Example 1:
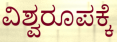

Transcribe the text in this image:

ವಿಶ್ವರೂಪಕ್ಕೆ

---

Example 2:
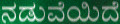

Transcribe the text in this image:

ನಡುವೆಯಿದೆ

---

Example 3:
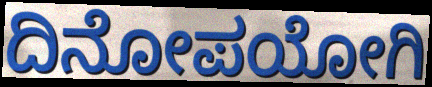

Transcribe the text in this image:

ದಿನೋಪಯೋಗಿ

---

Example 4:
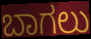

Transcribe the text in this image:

ಬಾಗಲು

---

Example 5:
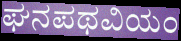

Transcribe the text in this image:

ಘನಪಥವಿಯಂ